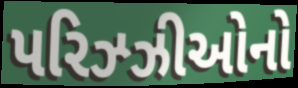
પરિઝ્ઝીઓનો